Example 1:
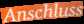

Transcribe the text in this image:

Anschluss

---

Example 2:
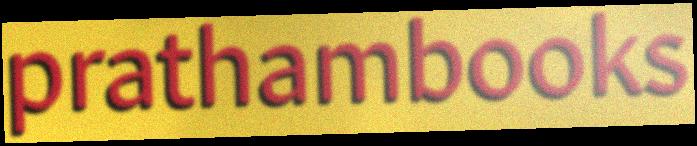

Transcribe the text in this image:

prathambooks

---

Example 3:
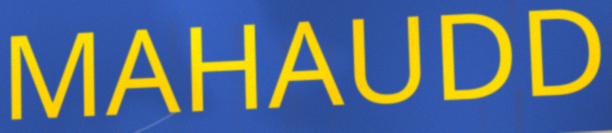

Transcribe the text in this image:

MAHAUDD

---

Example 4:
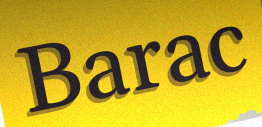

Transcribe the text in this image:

Barac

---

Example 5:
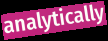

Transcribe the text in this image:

analytically